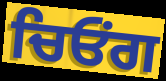
ਚਿਓਂਗ